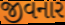
જીવનાર